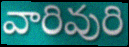
వారివురి